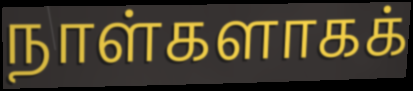
நாள்களாகக்